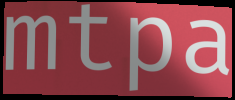
mtpa